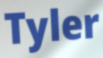
Tyler